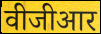
वीजीआर